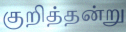
குறித்தன்று